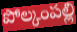
పోల్కంపల్లి